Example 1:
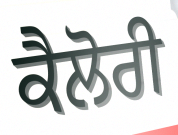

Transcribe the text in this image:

ਕੈਲੋਰੀ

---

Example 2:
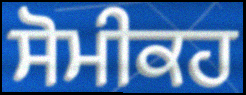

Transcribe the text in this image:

ਸੋਮੀਕਹ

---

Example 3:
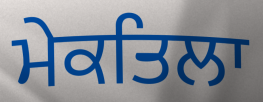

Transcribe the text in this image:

ਮੇਕਤਿਲਾ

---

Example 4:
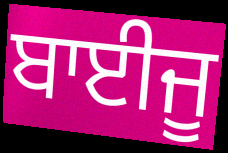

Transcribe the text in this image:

ਬਾਈਜੂ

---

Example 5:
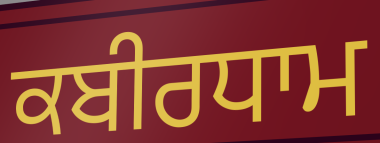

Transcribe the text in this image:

ਕਬੀਰਧਾਮ